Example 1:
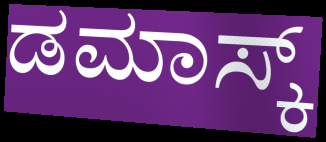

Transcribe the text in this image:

ಡಮಾಸ್ಕ್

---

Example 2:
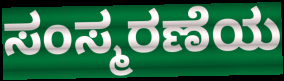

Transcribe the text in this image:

ಸಂಸ್ಮರಣೆಯ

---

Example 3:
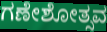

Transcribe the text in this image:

ಗಣೇಶೋತ್ಸವ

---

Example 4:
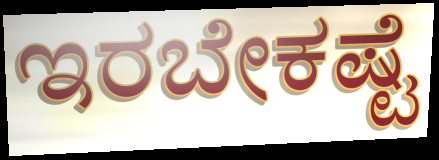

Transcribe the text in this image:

ಇರಬೇಕಷ್ಟೆ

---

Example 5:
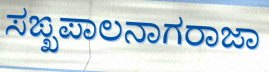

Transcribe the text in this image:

ಸಙ್ಖಪಾಲನಾಗರಾಜಾ